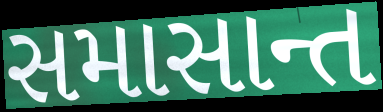
સમાસાન્ત